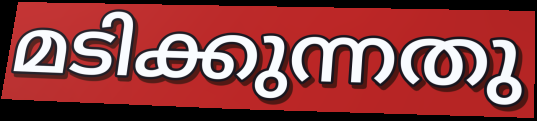
മടിക്കുന്നതു